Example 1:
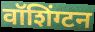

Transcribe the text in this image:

वॉशिंग्टन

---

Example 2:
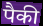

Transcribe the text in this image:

पैकी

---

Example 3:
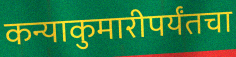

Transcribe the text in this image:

कन्याकुमारीपर्यंतचा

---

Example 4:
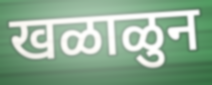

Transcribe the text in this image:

खळाळुन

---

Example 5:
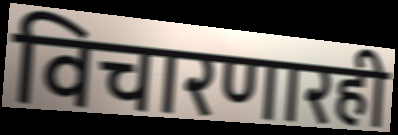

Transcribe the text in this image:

विचारणारही